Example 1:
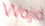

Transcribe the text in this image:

Wajid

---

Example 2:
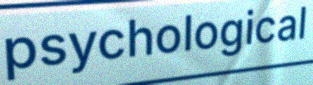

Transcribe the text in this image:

psychological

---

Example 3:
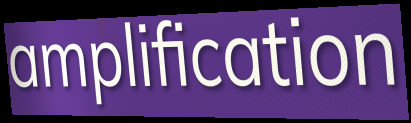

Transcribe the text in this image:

amplification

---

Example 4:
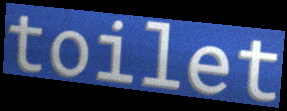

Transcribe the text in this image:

toilet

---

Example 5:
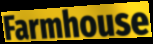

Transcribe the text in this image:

Farmhouse